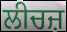
ਲੀਚਜ਼